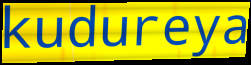
kudureya